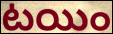
టయిం